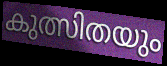
കുത്സിതയും